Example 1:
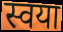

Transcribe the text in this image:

स्वया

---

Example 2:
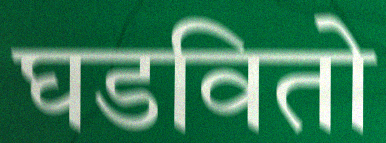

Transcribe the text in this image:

घडवितो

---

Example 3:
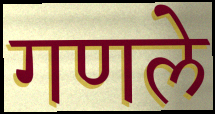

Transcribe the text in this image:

गणले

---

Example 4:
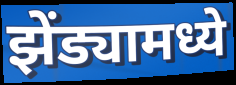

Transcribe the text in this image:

झेंड्यामध्ये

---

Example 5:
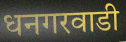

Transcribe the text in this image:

धनगरवाडी